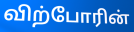
விற்போரின்